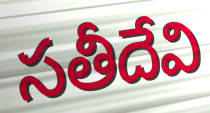
సతీదేవి